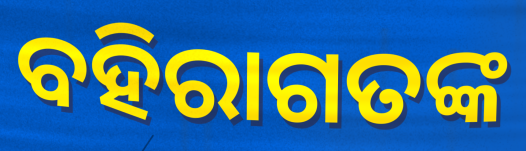
ବହିରାଗତଙ୍କ